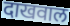
दाखवाल